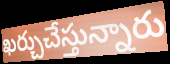
ఖర్చుచేస్తున్నారు